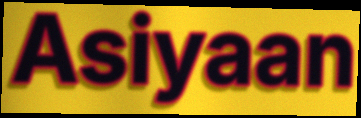
Asiyaan